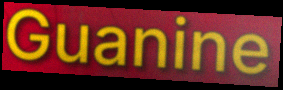
Guanine